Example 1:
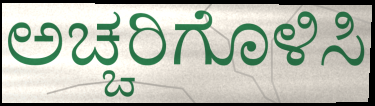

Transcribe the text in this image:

ಅಚ್ಚರಿಗೊಳಿಸಿ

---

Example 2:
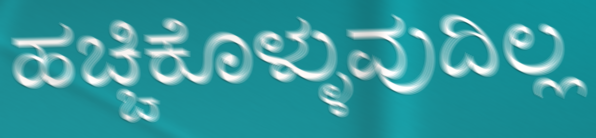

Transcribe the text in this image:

ಹಚ್ಚಿಕೊಳ್ಳುವುದಿಲ್ಲ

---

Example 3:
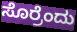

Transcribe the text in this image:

ಸೊರ್ರೆಂದು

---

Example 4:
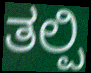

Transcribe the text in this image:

ತಲ್ಪಿ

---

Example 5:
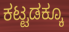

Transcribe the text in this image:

ಕಟ್ಟಡಕ್ಕೂ